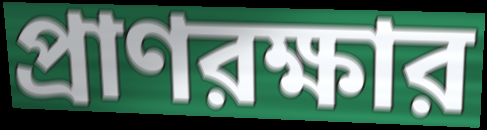
প্রাণরক্ষার